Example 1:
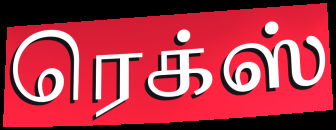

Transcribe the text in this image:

ரெக்ஸ்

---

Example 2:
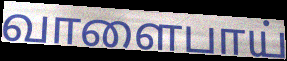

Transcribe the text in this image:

வாளைபாய்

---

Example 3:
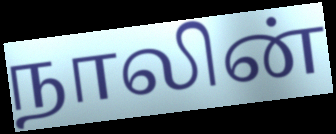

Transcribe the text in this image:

நாலின்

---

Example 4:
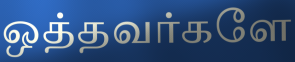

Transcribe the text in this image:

ஒத்தவர்களே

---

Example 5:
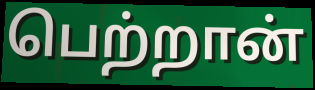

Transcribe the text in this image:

பெற்றான்